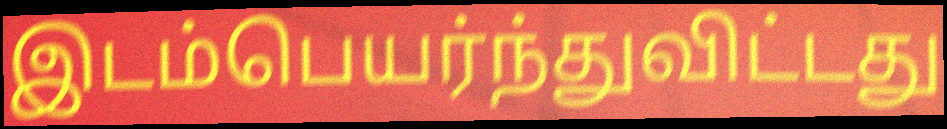
இடம்பெயர்ந்துவிட்டது